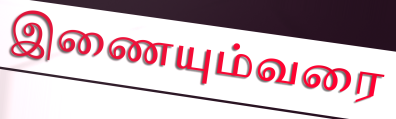
இணையும்வரை